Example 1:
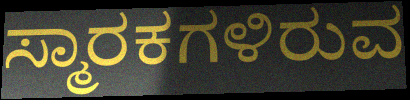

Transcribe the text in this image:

ಸ್ಮಾರಕಗಳಿರುವ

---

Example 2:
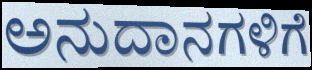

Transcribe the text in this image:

ಅನುದಾನಗಳಿಗೆ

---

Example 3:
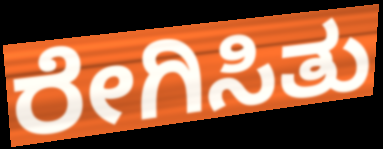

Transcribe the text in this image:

ರೇಗಿಸಿತು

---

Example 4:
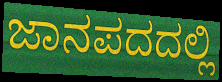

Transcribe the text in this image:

ಜಾನಪದದಲ್ಲಿ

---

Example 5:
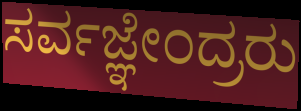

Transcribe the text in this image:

ಸರ್ವಜ್ಞೇಂದ್ರರು